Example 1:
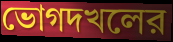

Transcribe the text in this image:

ভোগদখলের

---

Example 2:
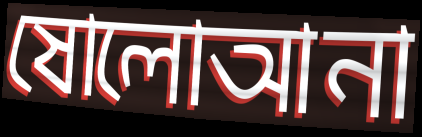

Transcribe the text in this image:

ষোলোআনা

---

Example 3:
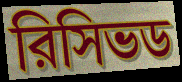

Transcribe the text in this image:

রিসিভড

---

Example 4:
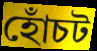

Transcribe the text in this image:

হোঁচট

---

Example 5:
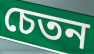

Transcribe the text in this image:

চেতন